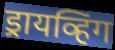
ड्रायव्हिंग